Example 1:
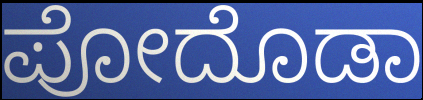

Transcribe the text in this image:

ಪೋದೊಡಾ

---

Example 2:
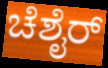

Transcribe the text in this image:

ಚೆಶೈರ್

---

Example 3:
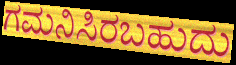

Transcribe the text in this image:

ಗಮನಿಸಿರಬಹುದು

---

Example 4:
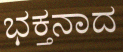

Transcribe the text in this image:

ಭಕ್ತನಾದ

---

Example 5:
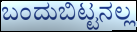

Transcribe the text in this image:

ಬಂದುಬಿಟ್ಟನಲ್ಲ